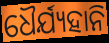
ଧୈର୍ଯ୍ୟହାନି